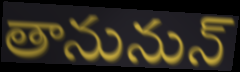
తానునున్